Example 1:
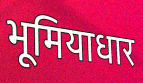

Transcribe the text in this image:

भूमियाधार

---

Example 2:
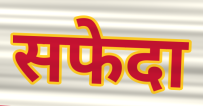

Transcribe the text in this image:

सफेदा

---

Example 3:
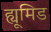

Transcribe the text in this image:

ह्यूमिड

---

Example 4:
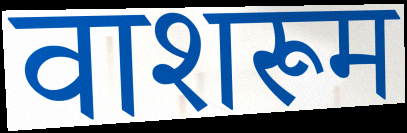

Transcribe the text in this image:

वाशरूम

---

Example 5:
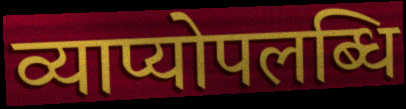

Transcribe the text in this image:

व्याप्योपलब्धि